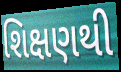
શિક્ષણથી